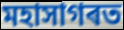
মহাসাগৰত